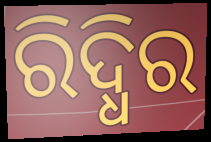
ରିଦ୍ଧିର